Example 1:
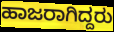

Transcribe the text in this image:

ಹಾಜರಾಗಿದ್ದರು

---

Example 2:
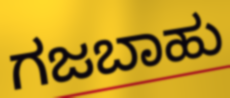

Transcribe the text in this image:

ಗಜಬಾಹು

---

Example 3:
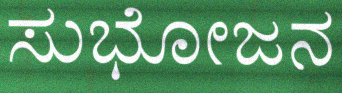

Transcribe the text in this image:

ಸುಭೋಜನ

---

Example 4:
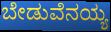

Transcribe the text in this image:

ಬೇಡುವೆನಯ್ಯ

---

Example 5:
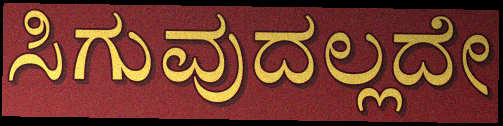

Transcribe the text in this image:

ಸಿಗುವುದಲ್ಲದೇ